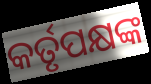
କର୍ତୃପକ୍ଷଙ୍କ